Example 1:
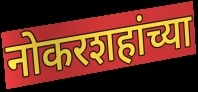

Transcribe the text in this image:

नोकरशहांच्या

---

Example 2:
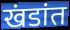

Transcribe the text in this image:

खंडांत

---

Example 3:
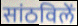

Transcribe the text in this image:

सांठविलें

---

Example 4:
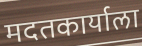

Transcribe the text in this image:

मदतकार्याला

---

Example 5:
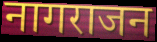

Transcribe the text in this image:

नागराजन